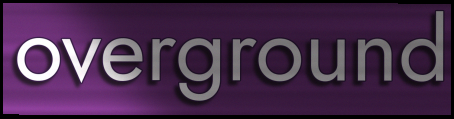
overground